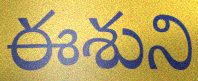
ఈశుని